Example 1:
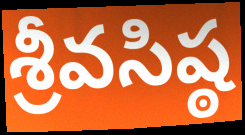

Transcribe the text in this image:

శ్రీవసిష్ఠ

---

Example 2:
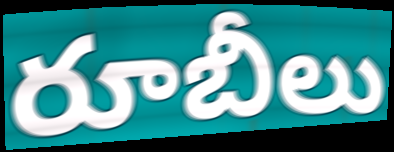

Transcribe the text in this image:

రూబీలు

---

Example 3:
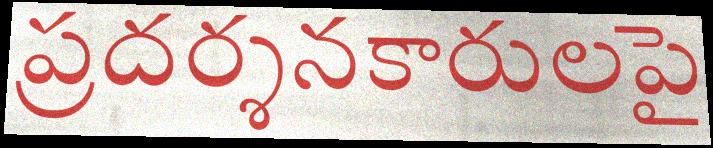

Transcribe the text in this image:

ప్రదర్శనకారులపై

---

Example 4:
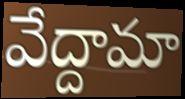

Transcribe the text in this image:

వేద్దామా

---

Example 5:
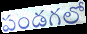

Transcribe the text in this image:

పండగలో